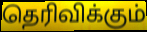
தெரிவிக்கும்